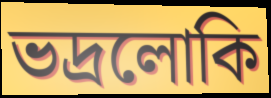
ভদ্রলোকি